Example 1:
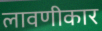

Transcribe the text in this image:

लावणीकार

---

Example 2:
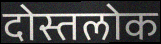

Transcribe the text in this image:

दोस्तलोक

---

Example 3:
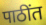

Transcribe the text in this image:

पाठींत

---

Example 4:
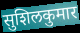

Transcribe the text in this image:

सुशिलकुमार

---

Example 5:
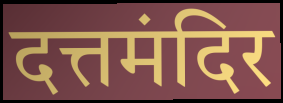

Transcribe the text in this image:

दत्तमंदिर